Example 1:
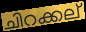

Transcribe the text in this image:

ചിറക്കല്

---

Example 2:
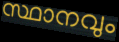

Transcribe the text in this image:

സ്ഥാനവും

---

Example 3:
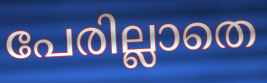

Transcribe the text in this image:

പേരില്ലാതെ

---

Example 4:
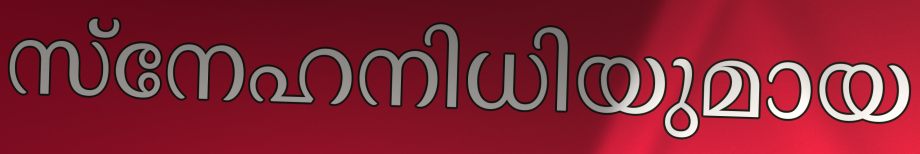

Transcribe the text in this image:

സ്നേഹനിധിയുമായ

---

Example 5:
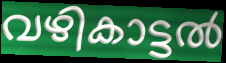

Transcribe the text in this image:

വഴികാട്ടൽ